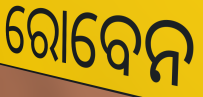
ରୋବେନ